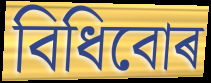
বিধিবোৰ